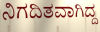
ನಿಗದಿತವಾಗಿದ್ದ